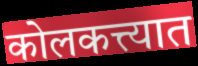
कोलकत्त्यात